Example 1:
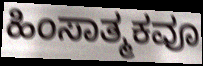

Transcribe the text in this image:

ಹಿಂಸಾತ್ಮಕವೂ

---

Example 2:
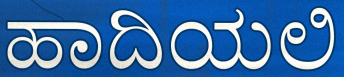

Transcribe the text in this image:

ಹಾದಿಯಲಿ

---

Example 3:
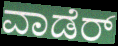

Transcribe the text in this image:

ವಾಡೆರ್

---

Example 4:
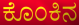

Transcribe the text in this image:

ಕೊಂಕಿನ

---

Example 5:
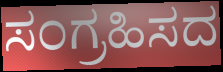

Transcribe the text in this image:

ಸಂಗ್ರಹಿಸದ